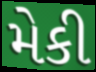
મેકી